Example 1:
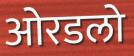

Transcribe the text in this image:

ओरडलो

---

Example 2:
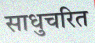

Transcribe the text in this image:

साधुचरित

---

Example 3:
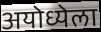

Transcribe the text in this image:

अयोध्येला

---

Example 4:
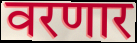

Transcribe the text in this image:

वरणार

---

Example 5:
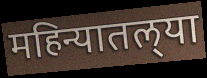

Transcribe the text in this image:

महिन्यातल्या